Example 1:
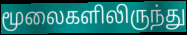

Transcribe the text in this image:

மூலைகளிலிருந்து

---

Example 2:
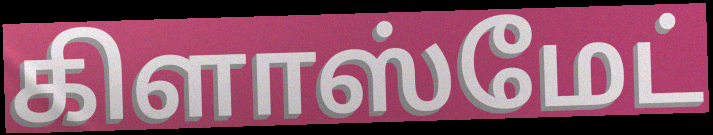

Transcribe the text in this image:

கிளாஸ்மேட்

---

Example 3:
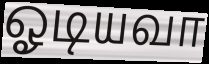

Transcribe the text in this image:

ஓடியவா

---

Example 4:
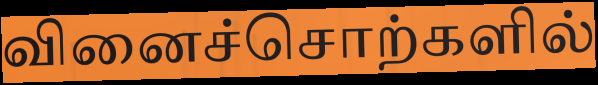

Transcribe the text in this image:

வினைச்சொற்களில்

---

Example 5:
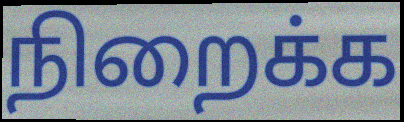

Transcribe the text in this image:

நிறைக்க